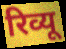
रिव्यू